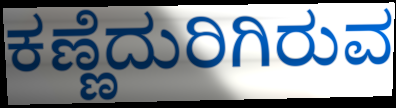
ಕಣ್ಣೆದುರಿಗಿರುವ